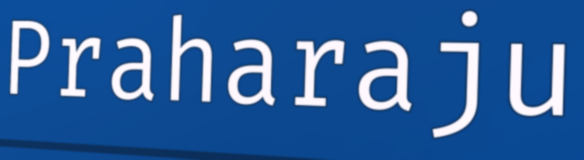
Praharaju